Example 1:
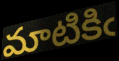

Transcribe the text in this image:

మాటికిఁ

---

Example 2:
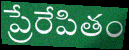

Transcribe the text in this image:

ప్రేరేపితం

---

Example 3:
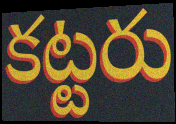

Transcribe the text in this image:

కట్టరు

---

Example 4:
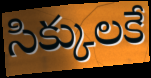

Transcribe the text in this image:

సిక్కులకే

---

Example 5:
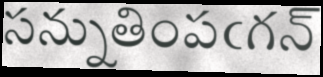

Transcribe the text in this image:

సన్నుతింపఁగన్